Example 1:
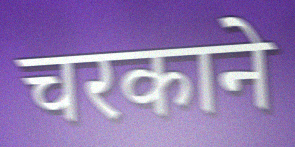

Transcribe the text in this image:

चरकाने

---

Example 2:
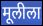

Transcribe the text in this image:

मूलीला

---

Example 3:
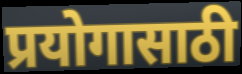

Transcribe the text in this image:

प्रयोगासाठी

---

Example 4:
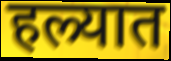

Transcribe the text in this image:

हल्यात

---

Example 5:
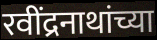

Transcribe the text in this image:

रवींद्रनाथांच्या